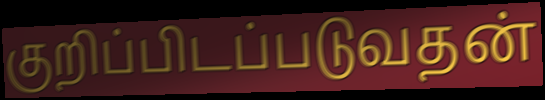
குறிப்பிடப்படுவதன்